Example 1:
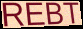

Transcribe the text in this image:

REBT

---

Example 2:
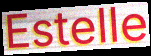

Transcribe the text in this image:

Estelle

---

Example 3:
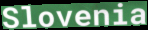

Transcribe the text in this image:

Slovenia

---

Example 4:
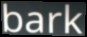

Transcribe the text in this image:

bark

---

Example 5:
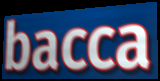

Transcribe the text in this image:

bacca